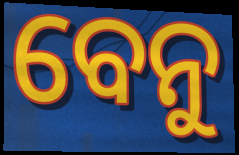
ବେନୁ